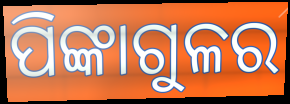
ପିଙ୍କାଗୁଳର